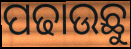
ପଢାଉଛୁ